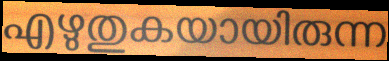
എഴുതുകയായിരുന്ന